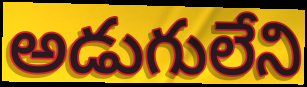
అడుగులేని